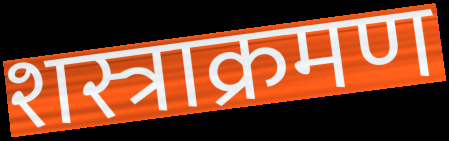
शस्त्राक्रमण